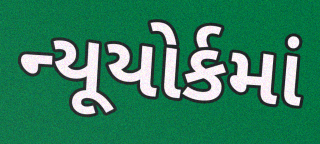
ન્યૂયોર્કમાં